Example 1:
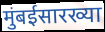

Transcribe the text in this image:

मुंबईसारख्या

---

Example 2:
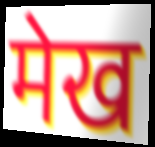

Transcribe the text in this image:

मेख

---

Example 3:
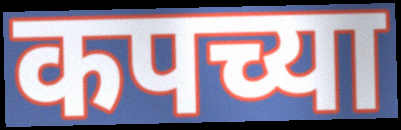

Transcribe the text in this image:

कपच्या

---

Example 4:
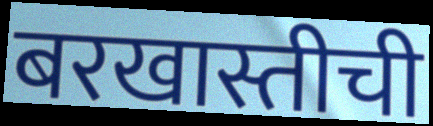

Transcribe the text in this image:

बरखास्तीची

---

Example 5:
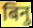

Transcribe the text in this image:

बिनु